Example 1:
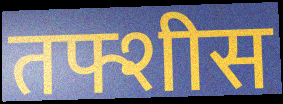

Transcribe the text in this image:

तफ्शीस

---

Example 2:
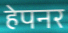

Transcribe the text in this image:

हेपनर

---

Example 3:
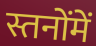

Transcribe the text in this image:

स्तनोंमें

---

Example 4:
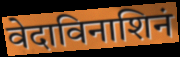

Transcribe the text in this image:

वेदाविनाशिनं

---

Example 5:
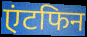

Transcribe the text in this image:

एंटफिन